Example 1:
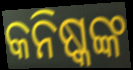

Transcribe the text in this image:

କନିଷ୍କଙ୍କ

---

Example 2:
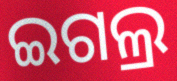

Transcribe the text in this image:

ଇଗଲ୍ର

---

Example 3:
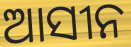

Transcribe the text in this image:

ଆସୀନ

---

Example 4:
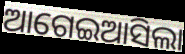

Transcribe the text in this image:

ଆଗେଇଆସିଲା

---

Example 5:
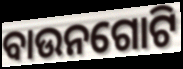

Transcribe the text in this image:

ବାଉନଗୋଟି